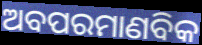
ଅବପରମାଣବିକ